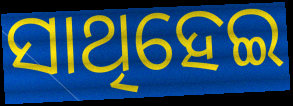
ସାଥିହେଇ